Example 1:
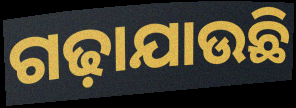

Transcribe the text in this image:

ଗଢ଼ାଯାଉଛି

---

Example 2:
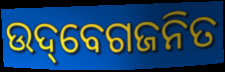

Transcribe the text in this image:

ଉଦ୍‌ବେଗଜନିତ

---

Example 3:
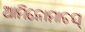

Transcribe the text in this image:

ଆମିନୋମାଚସ୍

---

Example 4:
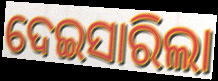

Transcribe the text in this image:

ଦେଇସାରିଲା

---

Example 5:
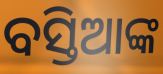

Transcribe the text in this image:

ବସ୍ତିଆଙ୍କ